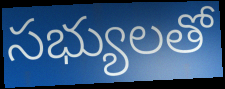
సభ్యులతో